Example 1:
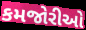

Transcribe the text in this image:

કમજોરીઓ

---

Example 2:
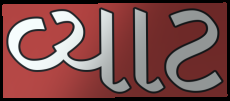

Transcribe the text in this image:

વ્યાટ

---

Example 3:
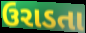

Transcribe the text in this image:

ઉરાડતા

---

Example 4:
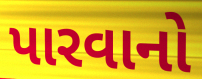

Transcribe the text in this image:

પારવાનો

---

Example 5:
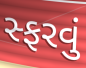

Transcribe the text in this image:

સ્ફરવું